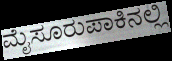
ಮೈಸೂರುಪಾಕಿನಲ್ಲಿ